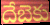
దేబెకు